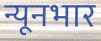
न्यूनभार